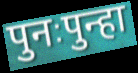
पुनःपुन्हा